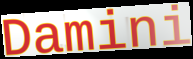
Damini